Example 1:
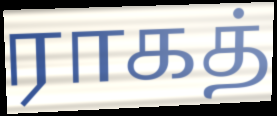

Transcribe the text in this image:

ராகத்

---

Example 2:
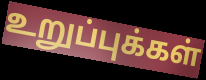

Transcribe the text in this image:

உறுப்புக்கள்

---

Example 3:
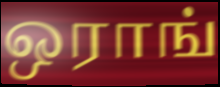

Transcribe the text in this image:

ஒராங்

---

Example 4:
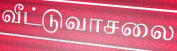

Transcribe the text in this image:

வீட்டுவாசலை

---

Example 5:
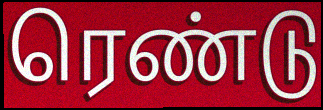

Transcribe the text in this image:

ரெண்டு